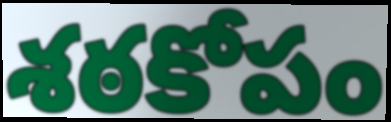
శఠకోపం